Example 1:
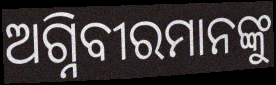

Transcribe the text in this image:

ଅଗ୍ନିବୀରମାନଙ୍କୁ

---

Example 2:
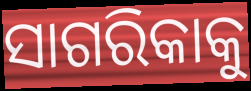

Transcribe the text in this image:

ସାଗରିକାକୁ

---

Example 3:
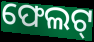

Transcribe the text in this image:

ଫେଲଟ୍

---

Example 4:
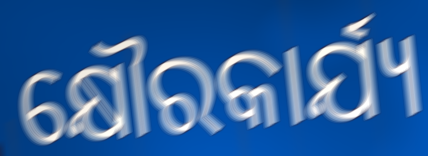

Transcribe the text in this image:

କ୍ଷୌରକାର୍ଯ୍ୟ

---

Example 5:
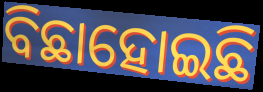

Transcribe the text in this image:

ବିଛାହୋଇଛି